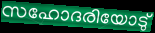
സഹോദരിയോടു്